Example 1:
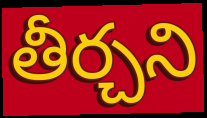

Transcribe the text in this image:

తీర్చని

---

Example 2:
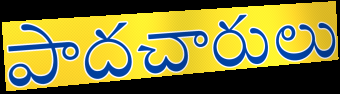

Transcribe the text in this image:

పాదచారులు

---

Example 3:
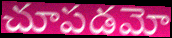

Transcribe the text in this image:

చూపడమో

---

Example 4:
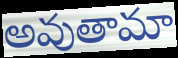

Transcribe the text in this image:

అవుతామా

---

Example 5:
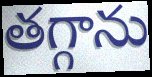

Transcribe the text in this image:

తగ్గాను